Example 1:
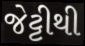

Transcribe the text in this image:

જેટ્ટીથી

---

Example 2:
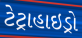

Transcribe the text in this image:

ટેટ્રાહાઇડ્રો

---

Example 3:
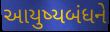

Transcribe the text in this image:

આયુષ્યબંધને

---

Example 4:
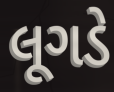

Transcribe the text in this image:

લૂગડે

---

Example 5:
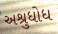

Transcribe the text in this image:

અશ્રુધોધ